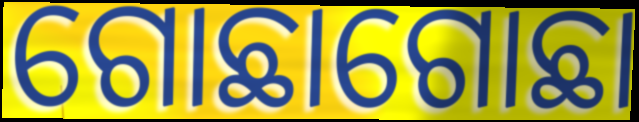
ଗୋଛାଗୋଛା